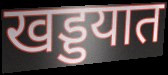
खड्डयात